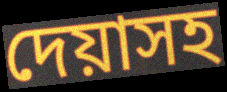
দেয়াসহ